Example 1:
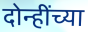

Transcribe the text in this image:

दोन्हींच्या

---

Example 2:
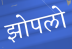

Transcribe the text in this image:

झोपलो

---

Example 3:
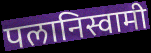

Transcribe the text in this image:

पलानिस्वामी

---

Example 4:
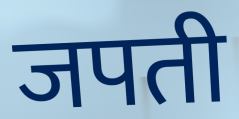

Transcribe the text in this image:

जपती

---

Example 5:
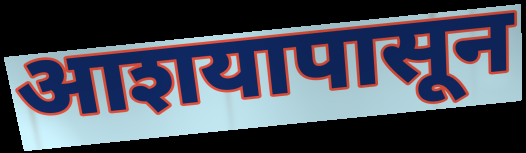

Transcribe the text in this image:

आशयापासून